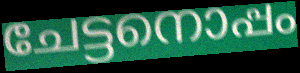
ചേട്ടനൊപ്പം